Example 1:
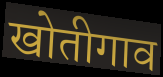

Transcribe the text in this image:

खोतीगाव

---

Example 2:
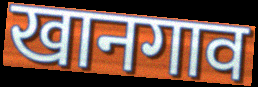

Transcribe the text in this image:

खानगाव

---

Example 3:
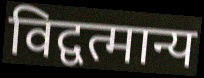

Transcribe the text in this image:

विद्वत्मान्य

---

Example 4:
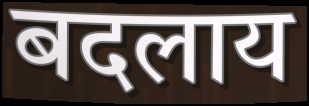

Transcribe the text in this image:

बदलाय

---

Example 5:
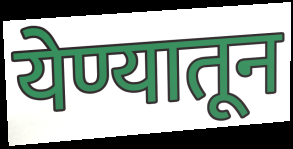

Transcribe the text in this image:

येण्यातून